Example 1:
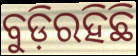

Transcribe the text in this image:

ବୁଡ଼ିରହିଛି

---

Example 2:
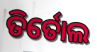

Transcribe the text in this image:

ତିର୍ତୋଲ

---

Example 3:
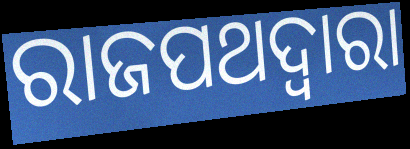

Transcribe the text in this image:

ରାଜପଥଦ୍ୱାରା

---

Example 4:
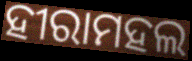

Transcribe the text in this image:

ହୀରାମହଲ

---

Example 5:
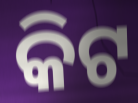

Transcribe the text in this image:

କିଟ